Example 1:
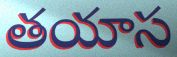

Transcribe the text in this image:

తయాస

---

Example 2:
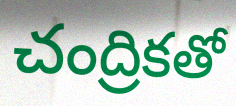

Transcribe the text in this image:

చంద్రికతో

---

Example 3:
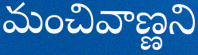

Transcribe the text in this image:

మంచివాణ్ణని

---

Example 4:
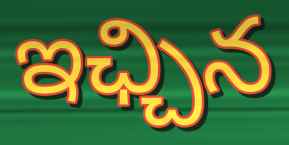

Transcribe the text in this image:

ఇఛ్చిన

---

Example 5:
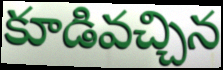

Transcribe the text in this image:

కూడివచ్చిన